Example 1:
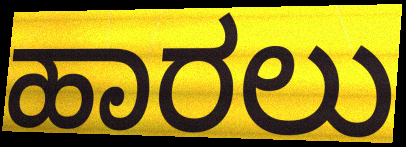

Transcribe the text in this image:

ಹಾರಲು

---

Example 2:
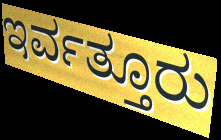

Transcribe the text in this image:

ಇರ್ವತ್ತೂರು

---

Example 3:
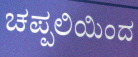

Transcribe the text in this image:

ಚಪ್ಪಲಿಯಿಂದ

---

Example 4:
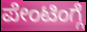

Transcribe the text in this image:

ಪೇಂಟಿಂಗ್ಗೆ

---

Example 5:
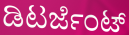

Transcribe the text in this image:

ಡಿಟರ್ಜೆಂಟ್